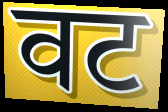
वट